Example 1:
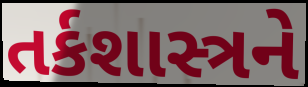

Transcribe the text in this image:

તર્કશાસ્ત્રને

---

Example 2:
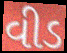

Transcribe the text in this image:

વીડ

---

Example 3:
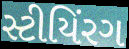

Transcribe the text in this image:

સ્ટીયિંરગ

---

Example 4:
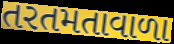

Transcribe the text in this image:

તરતમતાવાળા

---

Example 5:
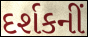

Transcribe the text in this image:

દર્શકનીં